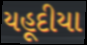
યહૂદીયા